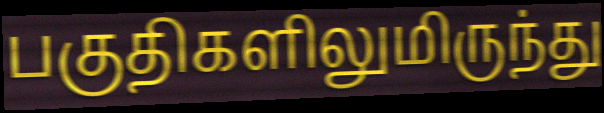
பகுதிகளிலுமிருந்து